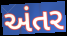
અંતર